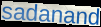
sadanand